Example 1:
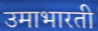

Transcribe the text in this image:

उमाभारती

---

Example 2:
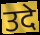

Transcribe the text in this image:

उदे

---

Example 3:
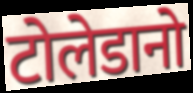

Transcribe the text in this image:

टोलेडानो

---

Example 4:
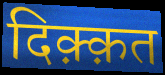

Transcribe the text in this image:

दिक़्क़त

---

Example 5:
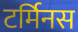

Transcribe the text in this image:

टर्मिनस